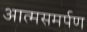
आत्मसमर्पण